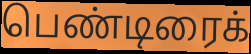
பெண்டிரைக்